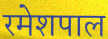
रमेशपाल